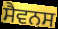
ਸੈਵਨਸ